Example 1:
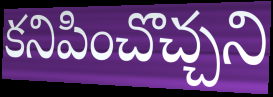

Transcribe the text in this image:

కనిపించొచ్చని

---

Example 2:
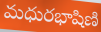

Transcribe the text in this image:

మధురభాషిణి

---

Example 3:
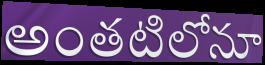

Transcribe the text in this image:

అంతటిలోనూ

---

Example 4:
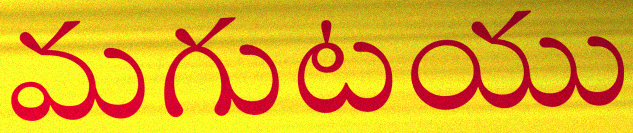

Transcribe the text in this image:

మగుటయు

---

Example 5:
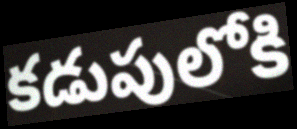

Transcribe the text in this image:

కడుపులోకి